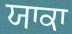
ਯਾਕਾ